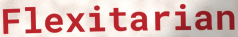
Flexitarian